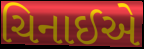
ચિનાઈએ